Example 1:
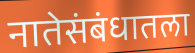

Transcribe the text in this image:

नातेसंबंधातला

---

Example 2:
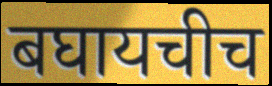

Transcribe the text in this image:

बघायचीच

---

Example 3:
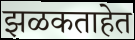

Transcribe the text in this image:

झळकताहेत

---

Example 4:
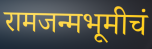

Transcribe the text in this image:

रामजन्मभूमीचं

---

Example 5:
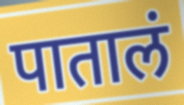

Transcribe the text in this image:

पातालं